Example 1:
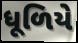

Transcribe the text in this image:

ધૂળિયે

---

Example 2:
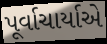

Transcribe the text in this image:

પૂર્વાચાર્યાએ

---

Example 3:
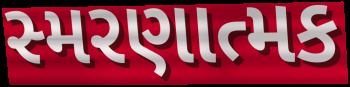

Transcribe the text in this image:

સ્મરણાત્મક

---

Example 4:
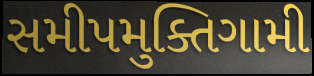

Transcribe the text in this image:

સમીપમુક્તિગામી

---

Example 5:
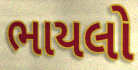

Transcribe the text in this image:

ભાયલો